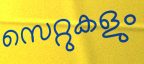
സെറ്റുകളും